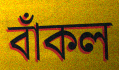
বাঁকল